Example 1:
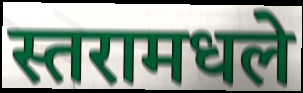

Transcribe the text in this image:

स्तरामधले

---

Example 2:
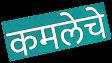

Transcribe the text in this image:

कमलेचे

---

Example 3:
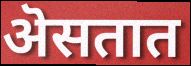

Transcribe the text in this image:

ऄसतात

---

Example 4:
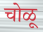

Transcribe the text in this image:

चोळू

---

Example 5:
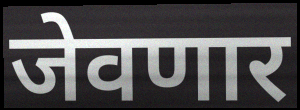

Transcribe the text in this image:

जेवणार